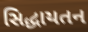
સિદ્ધાયતન